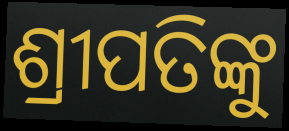
ଶ୍ରୀପତିଙ୍କୁ